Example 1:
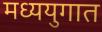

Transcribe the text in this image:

मध्ययुगात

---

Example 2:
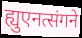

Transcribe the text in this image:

ह्युएनत्संगने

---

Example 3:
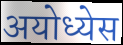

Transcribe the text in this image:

अयोध्येस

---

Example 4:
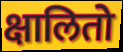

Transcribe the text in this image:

क्षालितो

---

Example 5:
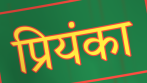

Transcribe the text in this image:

प्रियंका